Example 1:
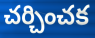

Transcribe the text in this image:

చర్చించక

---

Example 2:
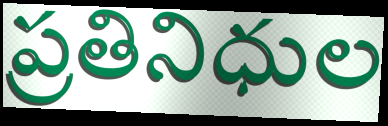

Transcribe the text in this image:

ప్రతినిధుల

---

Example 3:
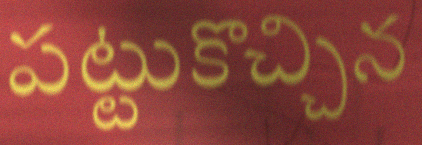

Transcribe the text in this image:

పట్టుకొచ్చిన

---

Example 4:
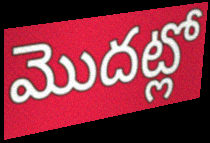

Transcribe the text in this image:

మొదట్లో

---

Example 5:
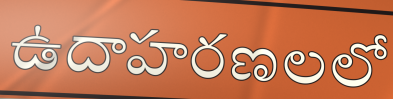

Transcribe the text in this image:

ఉదాహరణలలో